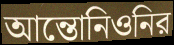
আন্তোনিওনির